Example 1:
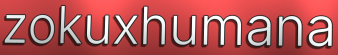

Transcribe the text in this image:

zokuxhumana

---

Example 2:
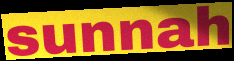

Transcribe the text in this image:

sunnah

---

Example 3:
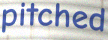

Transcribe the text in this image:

pitched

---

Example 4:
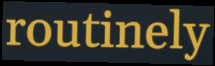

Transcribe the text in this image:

routinely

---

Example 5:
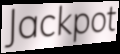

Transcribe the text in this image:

Jackpot